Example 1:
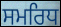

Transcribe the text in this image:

ਸਮਰਿਧ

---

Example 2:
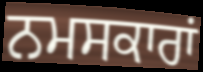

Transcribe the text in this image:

ਨਮਸਕਾਰਾਂ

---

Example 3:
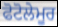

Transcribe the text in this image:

ਫੋਟੋਲੇਮੂਰ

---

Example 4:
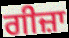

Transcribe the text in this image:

ਗੀਜ਼ਾ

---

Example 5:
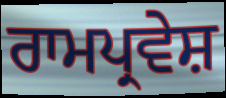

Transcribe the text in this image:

ਰਾਮਪ੍ਰਵੇਸ਼